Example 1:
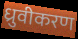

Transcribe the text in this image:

ध्रुवीकरण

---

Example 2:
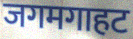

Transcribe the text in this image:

जगमगाहट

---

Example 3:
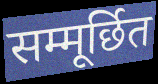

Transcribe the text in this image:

सम्मूर्छित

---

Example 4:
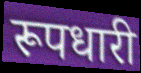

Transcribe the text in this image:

रूपधारी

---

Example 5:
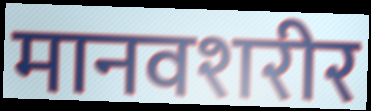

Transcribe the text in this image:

मानवशरीर